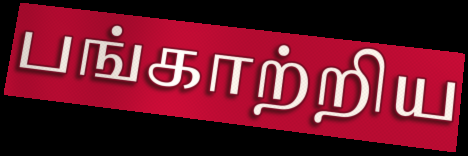
பங்காற்றிய